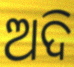
ଅଦି